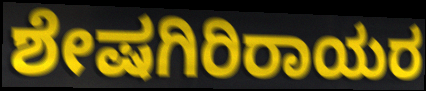
ಶೇಷಗಿರಿರಾಯರ